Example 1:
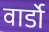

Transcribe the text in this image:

वार्डो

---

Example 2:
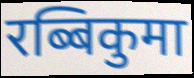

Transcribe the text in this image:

रब्बिकुमा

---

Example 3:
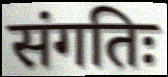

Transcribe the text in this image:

संगतिः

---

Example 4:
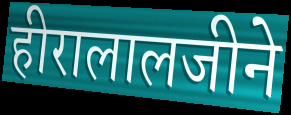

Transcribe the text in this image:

हीरालालजीने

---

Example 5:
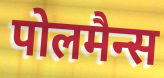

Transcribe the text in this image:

पोलमैन्स